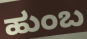
ಹುಂಬ